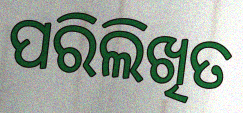
ପରିଲିଖିତ